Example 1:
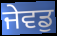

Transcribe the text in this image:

ਜੇਵਡੁ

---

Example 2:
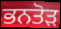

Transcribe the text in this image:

ਭਨਤੋੜ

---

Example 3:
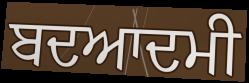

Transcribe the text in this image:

ਬਦਆਦਮੀ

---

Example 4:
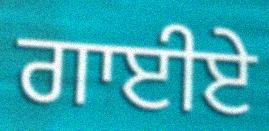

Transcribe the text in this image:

ਗਾਈਏ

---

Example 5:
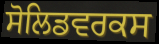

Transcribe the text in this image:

ਸੋਲਿਡਵਰਕਸ